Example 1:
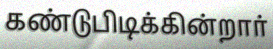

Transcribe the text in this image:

கண்டுபிடிக்கின்றார்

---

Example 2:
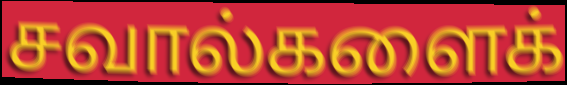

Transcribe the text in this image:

சவால்களைக்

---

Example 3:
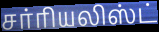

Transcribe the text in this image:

சர்ரியலிஸ்ட்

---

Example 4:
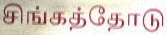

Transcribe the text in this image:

சிங்கத்தோடு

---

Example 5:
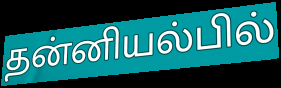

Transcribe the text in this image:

தன்னியல்பில்